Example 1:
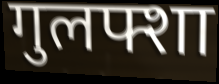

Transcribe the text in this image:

गुलफ्शा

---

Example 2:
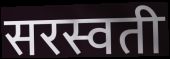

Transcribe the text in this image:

सरस्वती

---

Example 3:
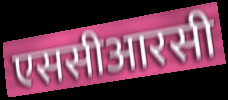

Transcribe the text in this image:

एससीआरसी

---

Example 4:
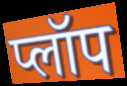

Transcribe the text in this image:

प्लॉप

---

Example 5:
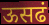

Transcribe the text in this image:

ऊसढं